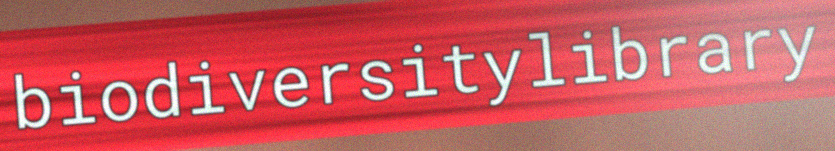
biodiversitylibrary